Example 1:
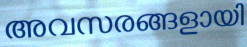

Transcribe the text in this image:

അവസരങ്ങളായി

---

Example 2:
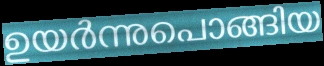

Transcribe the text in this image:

ഉയർന്നുപൊങ്ങിയ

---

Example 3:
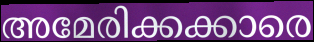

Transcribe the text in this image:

അമേരിക്കക്കാരെ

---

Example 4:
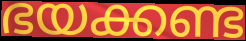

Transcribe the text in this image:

ഭയക്കണ്ട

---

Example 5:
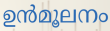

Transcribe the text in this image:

ഉൻമൂലനം